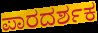
ಪಾರದರ್ಶಕ